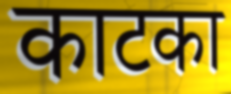
काटका